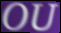
OU